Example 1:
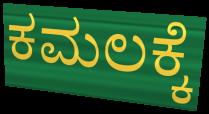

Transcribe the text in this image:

ಕಮಲಕ್ಕೆ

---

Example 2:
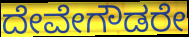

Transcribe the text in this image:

ದೇವೇಗೌಡರೇ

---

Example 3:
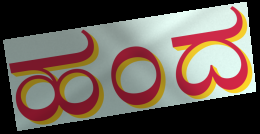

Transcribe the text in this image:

ಹಂದ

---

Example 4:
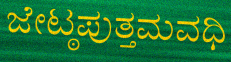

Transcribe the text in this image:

ಜೇಟ್ಠಪುತ್ತಮವಧಿ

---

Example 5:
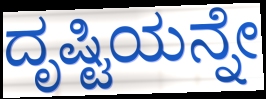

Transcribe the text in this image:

ದೃಷ್ಟಿಯನ್ನೇ